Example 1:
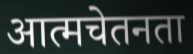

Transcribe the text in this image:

आत्मचेतनता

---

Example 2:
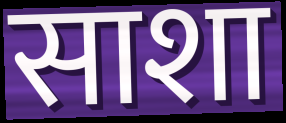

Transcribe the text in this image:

साशा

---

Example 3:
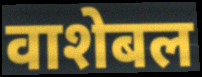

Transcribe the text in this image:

वाशेबल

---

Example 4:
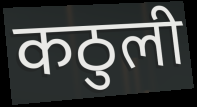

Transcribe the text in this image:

कठुली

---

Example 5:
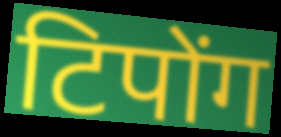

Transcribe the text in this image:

टिपोंग